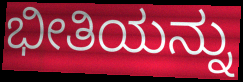
ಭೀತಿಯನ್ನು